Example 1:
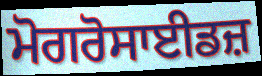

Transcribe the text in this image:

ਮੋਗਰੋਸਾਈਡਜ਼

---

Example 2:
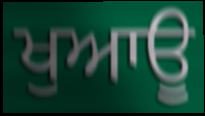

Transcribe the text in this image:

ਖੁਆਊ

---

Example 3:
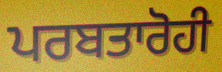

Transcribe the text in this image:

ਪਰਬਤਾਰੋਹੀ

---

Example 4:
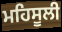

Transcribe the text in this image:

ਮਹਿਸੂਲੀ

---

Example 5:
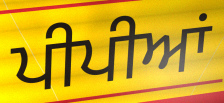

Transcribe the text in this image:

ਪੀਪੀਆਂ